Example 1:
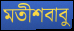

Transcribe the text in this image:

মতীশবাবু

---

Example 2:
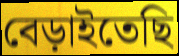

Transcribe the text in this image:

বেড়াইতেছি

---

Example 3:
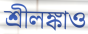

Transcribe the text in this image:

শ্রীলঙ্কাও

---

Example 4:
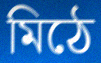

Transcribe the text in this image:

মিঠে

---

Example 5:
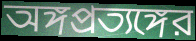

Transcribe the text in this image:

অঙ্গপ্রত্যঙ্গের